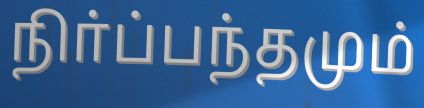
நிர்ப்பந்தமும்